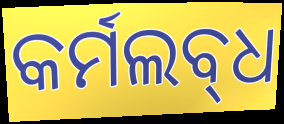
କର୍ମଲବ୍‌ଧ